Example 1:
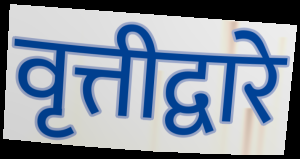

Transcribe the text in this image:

वृत्तीद्वारे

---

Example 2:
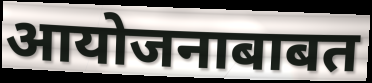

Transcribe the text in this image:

आयोजनाबाबत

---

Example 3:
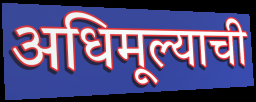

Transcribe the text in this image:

अधिमूल्याची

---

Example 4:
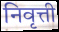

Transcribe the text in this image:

निवृत्ती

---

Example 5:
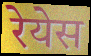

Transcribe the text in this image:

रेयेस